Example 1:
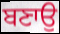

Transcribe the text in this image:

ਬਣਾਉ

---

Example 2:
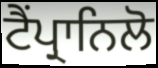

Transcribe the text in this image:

ਟੈਂਪ੍ਰਾਨਿਲੋ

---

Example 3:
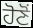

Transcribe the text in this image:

ਹੋਣੋਂ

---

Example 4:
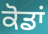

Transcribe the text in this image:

ਕੋਡਾਂ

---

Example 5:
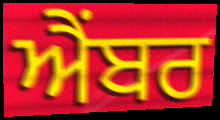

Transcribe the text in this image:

ਐਂਬਰ